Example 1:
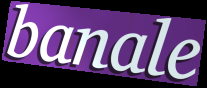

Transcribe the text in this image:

banale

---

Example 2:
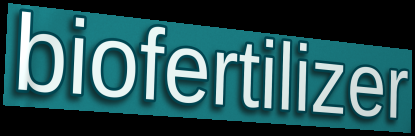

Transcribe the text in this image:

biofertilizer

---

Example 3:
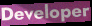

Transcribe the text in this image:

Developer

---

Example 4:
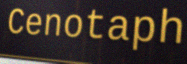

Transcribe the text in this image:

Cenotaph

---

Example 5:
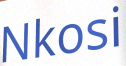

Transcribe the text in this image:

Nkosi